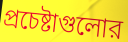
প্রচেষ্টাগুলোর